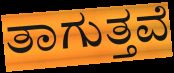
ತಾಗುತ್ತವೆ